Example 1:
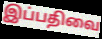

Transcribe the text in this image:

இப்பதிவை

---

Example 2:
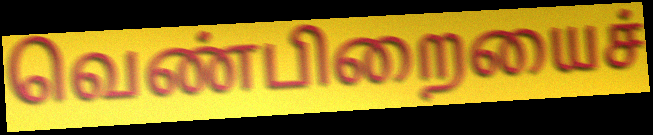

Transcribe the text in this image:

வெண்பிறையைச்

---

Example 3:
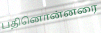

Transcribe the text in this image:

பதினொன்னரை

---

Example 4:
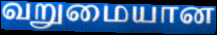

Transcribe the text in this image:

வறுமையான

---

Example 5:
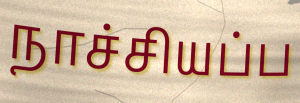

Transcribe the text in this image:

நாச்சியப்ப